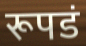
रूपडं